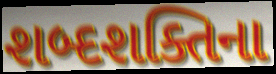
શબ્દશક્તિના